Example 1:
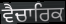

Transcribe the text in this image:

ਵੈਚਾਰਿਕ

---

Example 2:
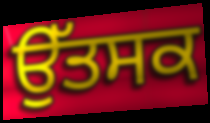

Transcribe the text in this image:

ਉੱਤਸਕ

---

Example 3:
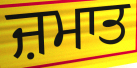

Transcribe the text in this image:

ਜ਼ਮਾਤ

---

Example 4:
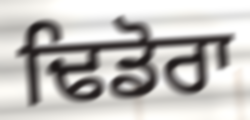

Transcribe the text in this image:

ਢਿਡੋਰਾ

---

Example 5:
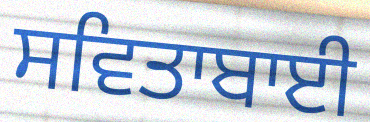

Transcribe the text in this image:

ਸਵਿਤਾਬਾਈ